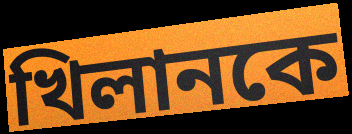
খিলানকে